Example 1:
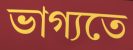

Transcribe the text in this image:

ভাগ্যতে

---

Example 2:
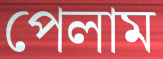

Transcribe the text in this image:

পেলাম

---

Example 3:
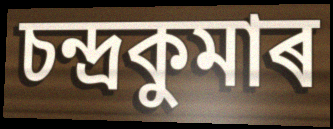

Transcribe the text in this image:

চন্দ্ৰকুমাৰ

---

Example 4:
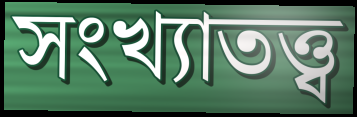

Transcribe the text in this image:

সংখ্যাতত্ত্ব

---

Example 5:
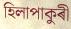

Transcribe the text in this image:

হিলাপাকুৰী